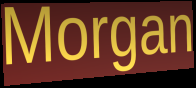
Morgan